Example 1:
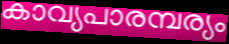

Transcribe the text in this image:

കാവ്യപാരമ്പര്യം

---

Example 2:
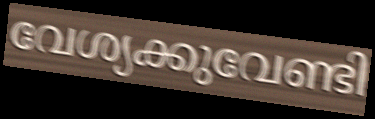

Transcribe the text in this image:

വേശ്യക്കുവേണ്ടി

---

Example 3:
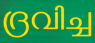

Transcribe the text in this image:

ദ്രവിച്ച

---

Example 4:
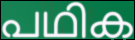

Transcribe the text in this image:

പഥിക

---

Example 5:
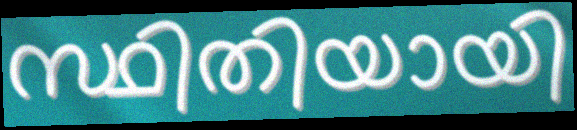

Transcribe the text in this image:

സ്ഥിതിയായി